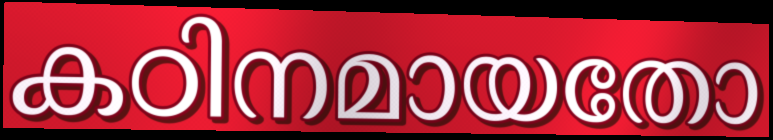
കഠിനമായതോ